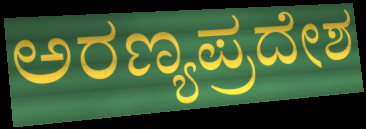
ಅರಣ್ಯಪ್ರದೇಶ